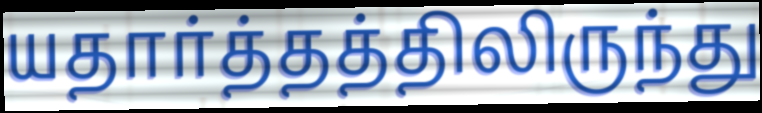
யதார்த்தத்திலிருந்து